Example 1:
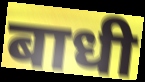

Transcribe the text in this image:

बाधी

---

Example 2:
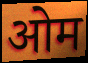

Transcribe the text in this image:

ओम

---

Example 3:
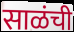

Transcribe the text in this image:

साळंची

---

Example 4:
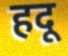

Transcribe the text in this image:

हदू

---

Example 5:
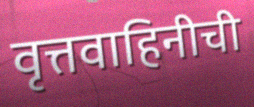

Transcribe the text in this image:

वृत्तवाहिनीची